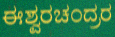
ಈಶ್ವರಚಂದ್ರರ